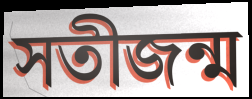
সতীজন্ম